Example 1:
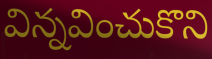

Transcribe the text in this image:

విన్నవించుకొని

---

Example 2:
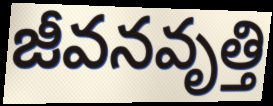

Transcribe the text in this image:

జీవనవృత్తి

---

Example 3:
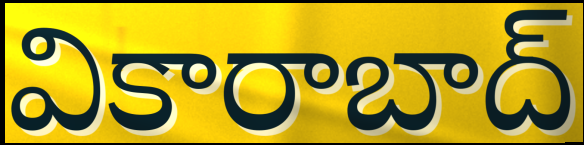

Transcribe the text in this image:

వికారాబాద్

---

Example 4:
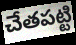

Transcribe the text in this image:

చేతపట్టి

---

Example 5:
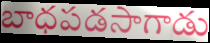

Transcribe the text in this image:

బాధపడసాగాడు